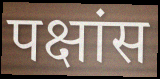
पक्षांस